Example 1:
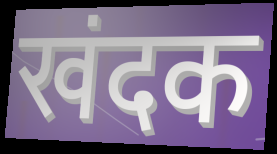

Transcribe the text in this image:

खंदक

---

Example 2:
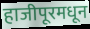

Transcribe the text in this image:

हाजीपूरमधून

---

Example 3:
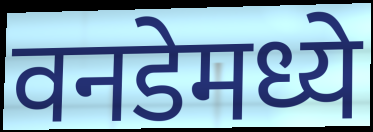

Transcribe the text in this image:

वनडेमध्ये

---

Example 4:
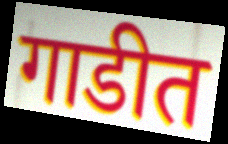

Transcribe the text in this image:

गाडीत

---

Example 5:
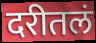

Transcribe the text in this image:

दरीतलं